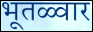
भूतळ्वार